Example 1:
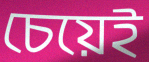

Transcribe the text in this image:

চেয়েই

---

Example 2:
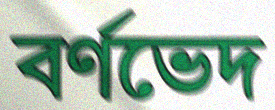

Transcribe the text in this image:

বর্ণভেদ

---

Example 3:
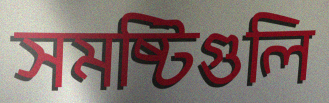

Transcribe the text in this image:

সমষ্টিগুলি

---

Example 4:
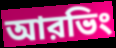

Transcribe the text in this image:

আরভিং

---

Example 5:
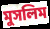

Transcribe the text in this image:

মুসলিম